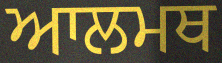
ਆਲਮਥ